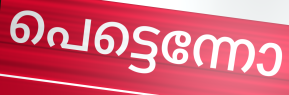
പെട്ടെന്നോ